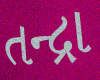
તન્દ્રા